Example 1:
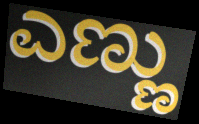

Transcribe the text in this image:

ಎಣ್ಣು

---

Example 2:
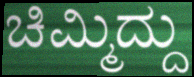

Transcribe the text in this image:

ಚಿಮ್ಮಿದ್ದು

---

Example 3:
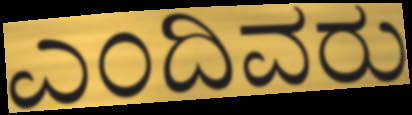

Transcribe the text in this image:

ಎಂದಿವರು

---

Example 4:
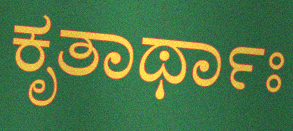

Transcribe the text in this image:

ಕೃತಾರ್ಥಾಃ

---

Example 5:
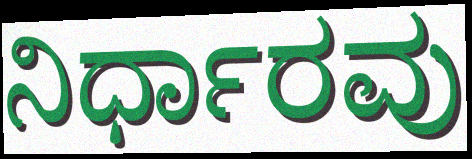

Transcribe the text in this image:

ನಿರ್ಧಾರವು